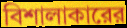
বিশালাকারের